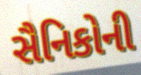
સૈનિકોની